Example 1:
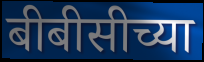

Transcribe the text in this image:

बीबीसीच्या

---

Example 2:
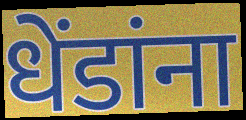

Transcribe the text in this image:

धेंडांना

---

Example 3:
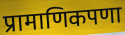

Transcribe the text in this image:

प्रामाणिकपणा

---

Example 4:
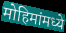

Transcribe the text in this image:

मोहिमांमध्ये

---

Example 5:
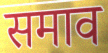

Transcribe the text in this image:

समाव